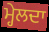
ਮ੍ਹੇਲਦਾ